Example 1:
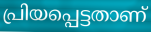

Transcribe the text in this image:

പ്രിയപ്പെട്ടതാണ്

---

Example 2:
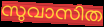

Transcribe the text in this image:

സുവാസിത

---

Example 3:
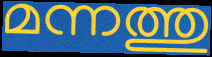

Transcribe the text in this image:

മന്നത്തു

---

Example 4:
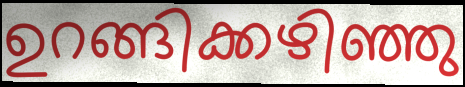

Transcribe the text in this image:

ഉറങ്ങിക്കഴിഞ്ഞു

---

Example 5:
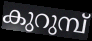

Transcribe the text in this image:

കുറുമ്പ്